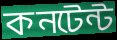
কনটেন্ট